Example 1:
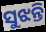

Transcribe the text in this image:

ସୁଝନ୍ତି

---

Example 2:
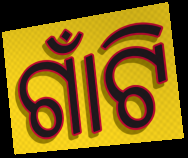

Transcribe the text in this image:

ଗାଁଟି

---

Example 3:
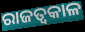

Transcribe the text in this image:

ରାଜତ୍ଵକାଳ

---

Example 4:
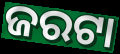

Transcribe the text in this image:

ଜରଟା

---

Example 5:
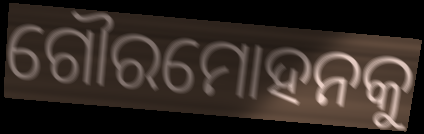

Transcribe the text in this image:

ଗୌରମୋହନକୁ